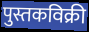
पुस्तकविक्री